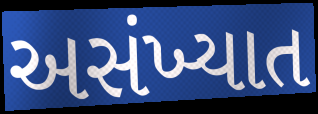
અસંખ્યાત